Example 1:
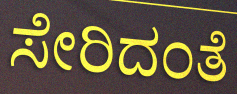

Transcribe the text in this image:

ಸೇರಿದಂತೆ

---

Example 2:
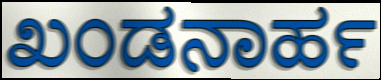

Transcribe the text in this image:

ಖಂಡನಾರ್ಹ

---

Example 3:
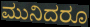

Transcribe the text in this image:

ಮುನಿದರೂ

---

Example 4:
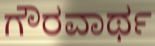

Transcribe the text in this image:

ಗೌರವಾರ್ಥ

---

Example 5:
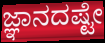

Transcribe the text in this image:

ಜ್ಞಾನದಷ್ಟೇ